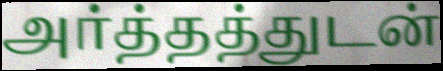
அர்த்தத்துடன்